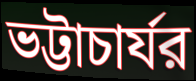
ভট্টাচার্যর